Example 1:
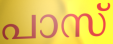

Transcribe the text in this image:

പാസ്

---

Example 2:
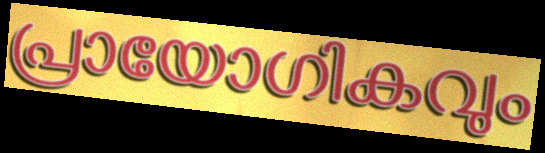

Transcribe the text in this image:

പ്രായോഗികവും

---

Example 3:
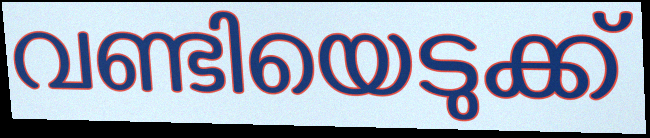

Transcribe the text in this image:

വണ്ടിയെടുക്ക്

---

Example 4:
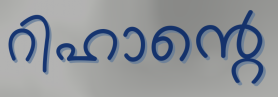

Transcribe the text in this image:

റിഹാന്റെ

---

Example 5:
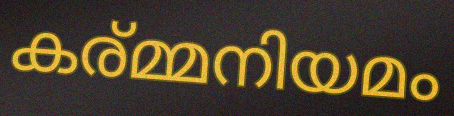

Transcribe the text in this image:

കര്മ്മനിയമം